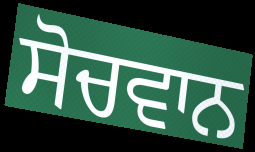
ਸੋਚਵਾਨ